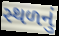
સ્થળનું